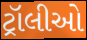
ટ્રૉલીઓ